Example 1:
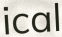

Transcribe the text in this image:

ical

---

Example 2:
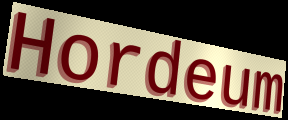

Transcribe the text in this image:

Hordeum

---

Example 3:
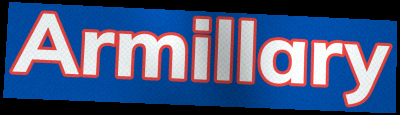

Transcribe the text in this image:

Armillary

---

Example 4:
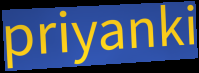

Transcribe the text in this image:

priyanki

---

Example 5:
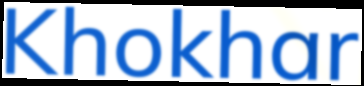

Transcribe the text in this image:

Khokhar